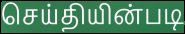
செய்தியின்படி